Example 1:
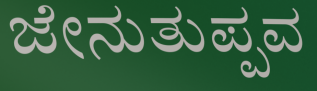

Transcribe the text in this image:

ಜೇನುತುಪ್ಪವ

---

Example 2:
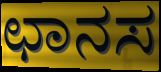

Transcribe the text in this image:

ಛಾನಸ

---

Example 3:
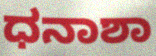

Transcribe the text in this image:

ಧನಾಶಾ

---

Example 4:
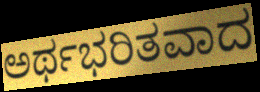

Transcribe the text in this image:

ಅರ್ಥಭರಿತವಾದ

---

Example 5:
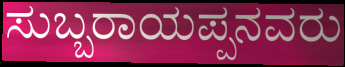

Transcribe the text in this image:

ಸುಬ್ಬರಾಯಪ್ಪನವರು